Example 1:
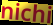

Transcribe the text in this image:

nichi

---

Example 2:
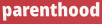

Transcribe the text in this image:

parenthood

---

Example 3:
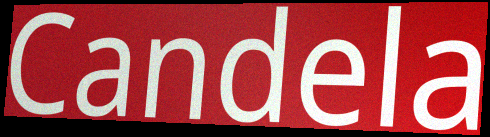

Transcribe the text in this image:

Candela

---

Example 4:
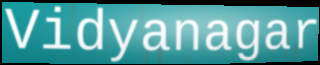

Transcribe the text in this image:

Vidyanagar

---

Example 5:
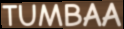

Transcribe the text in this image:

TUMBAA